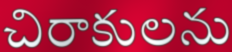
చిరాకులను